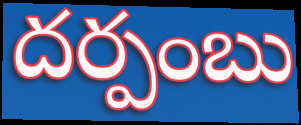
దర్పంబు